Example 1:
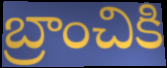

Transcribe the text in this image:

బ్రాంచికి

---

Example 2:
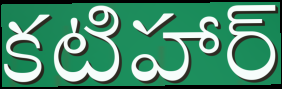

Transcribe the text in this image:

కటిహార్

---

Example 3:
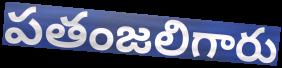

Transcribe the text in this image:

పతంజలిగారు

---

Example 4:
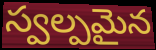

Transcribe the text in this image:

స్వల్పమైన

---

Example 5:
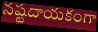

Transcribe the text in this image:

నష్టదాయకంగా